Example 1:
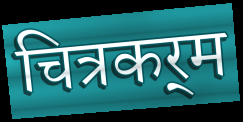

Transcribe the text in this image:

चित्रकर्म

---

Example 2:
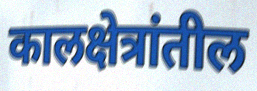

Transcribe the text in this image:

कालक्षेत्रांतील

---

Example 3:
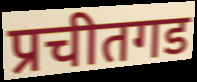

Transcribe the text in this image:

प्रचीतगड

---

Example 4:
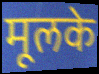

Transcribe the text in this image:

मूलके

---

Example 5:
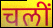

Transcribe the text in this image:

चलीं